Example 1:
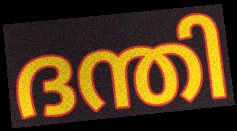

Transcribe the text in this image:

ദന്തി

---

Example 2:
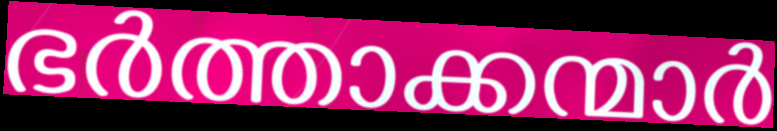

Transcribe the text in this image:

ഭർത്താക്കന്മാർ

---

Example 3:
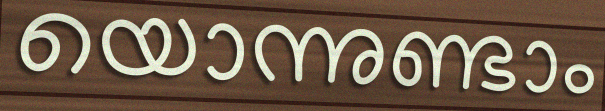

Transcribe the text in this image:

യൊന്നുണ്ടാം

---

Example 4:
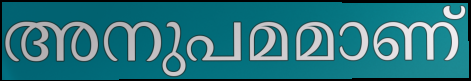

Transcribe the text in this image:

അനുപമമാണ്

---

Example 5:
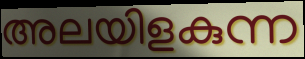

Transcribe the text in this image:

അലയിളകുന്ന